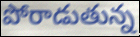
పోరాడుతున్న